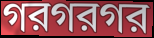
গরগরগর